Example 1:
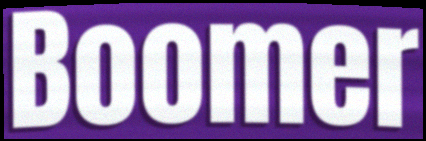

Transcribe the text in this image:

Boomer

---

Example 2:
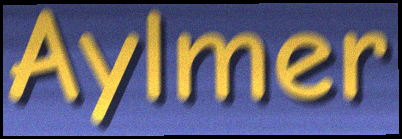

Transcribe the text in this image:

Aylmer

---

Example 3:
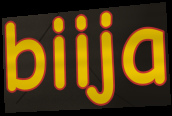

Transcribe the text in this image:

biija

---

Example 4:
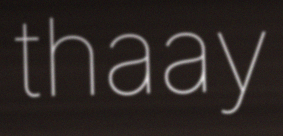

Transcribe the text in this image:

thaay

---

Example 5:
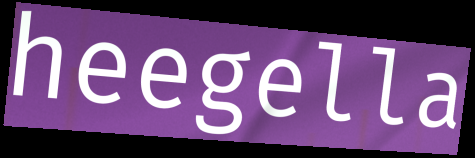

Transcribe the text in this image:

heegella